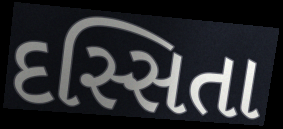
દસ્સિતા